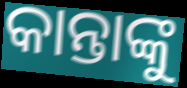
କାନ୍ତାଙ୍କୁ